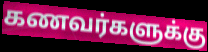
கணவர்களுக்கு